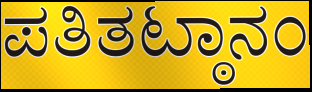
ಪತಿತಟ್ಠಾನಂ